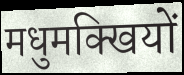
मधुमक्खियों